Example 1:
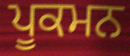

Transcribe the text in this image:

ਪੂਕਮਨ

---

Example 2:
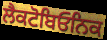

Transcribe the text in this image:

ਲੈਕਟੋਬਿਓਨਿਕ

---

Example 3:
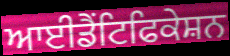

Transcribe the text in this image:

ਆਈਡੈਂਟਿਫਿਕੇਸ਼ਨ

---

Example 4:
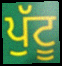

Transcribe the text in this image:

ਪੁੱਟੂ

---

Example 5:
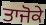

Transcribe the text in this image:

ਤਾਜੋਕੇ